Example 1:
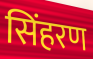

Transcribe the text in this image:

सिंहरण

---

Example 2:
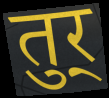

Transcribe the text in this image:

तुर्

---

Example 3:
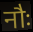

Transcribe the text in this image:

नौः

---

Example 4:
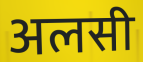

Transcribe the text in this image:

अलसी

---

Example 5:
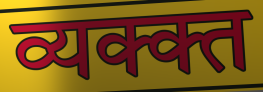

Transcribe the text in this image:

व्यक्क्त